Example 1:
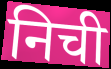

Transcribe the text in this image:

निची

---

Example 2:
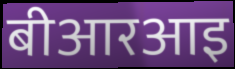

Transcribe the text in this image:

बीआरआइ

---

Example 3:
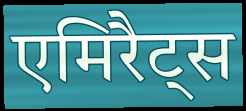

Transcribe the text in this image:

एमिरैट्स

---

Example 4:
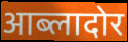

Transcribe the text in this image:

आब्लादोर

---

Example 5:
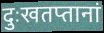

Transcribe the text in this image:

दुःखतप्तानां